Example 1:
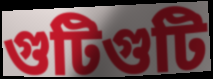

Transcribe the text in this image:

গুটিগুটি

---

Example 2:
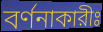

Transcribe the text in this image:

বর্ণনাকারীঃ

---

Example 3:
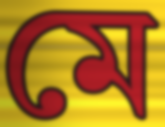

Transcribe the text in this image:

মে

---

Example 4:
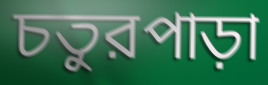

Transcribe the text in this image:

চতুরপাড়া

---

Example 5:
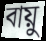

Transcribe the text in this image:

বায়ু